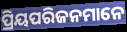
ପ୍ରିୟପରିଜନମାନେ